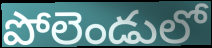
పోలెండులో